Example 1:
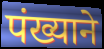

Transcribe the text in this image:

पंख्याने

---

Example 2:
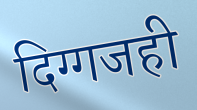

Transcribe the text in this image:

दिग्गजही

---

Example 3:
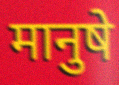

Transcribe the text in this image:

मानुषे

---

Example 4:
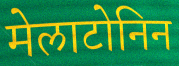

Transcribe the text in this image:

मेलाटोनिन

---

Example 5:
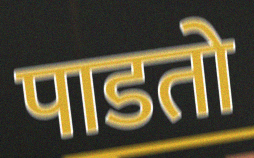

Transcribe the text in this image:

पाडतो